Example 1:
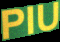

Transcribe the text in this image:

PIU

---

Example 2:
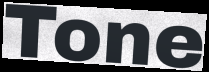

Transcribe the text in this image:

Tone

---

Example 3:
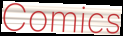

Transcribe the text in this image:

Comics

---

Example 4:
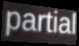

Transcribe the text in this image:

partial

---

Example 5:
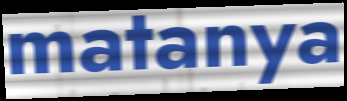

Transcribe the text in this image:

matanya